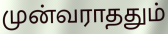
முன்வராததும்